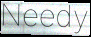
Needy